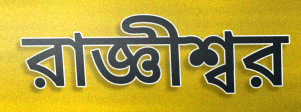
রাজ্ঞীশ্বর